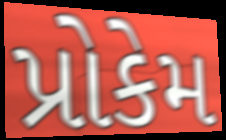
પ્રોકેમ